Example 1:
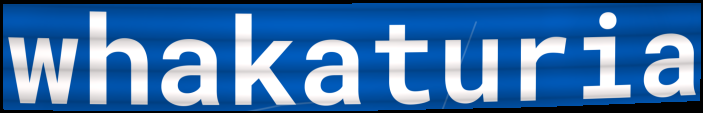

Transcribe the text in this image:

whakaturia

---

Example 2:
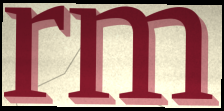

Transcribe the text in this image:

rm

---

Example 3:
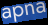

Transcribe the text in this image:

apna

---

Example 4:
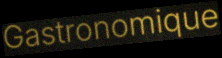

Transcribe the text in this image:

Gastronomique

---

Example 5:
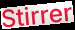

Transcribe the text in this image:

Stirrer